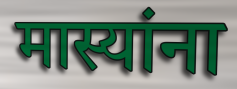
मास्यांना